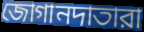
জোগানদাতারা